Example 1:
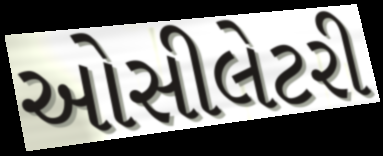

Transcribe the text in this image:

ઓસીલેટરી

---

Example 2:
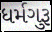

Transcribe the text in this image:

ધર્મગુરૂ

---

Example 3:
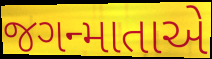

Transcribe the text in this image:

જગન્માતાએ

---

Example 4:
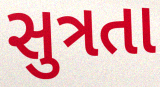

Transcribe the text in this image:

સુત્રતા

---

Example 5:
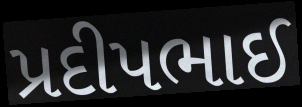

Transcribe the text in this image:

પ્રદીપભાઈ